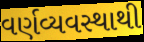
વર્ણવ્યવસ્થાથી